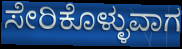
ಸೇರಿಕೊಳ್ಳುವಾಗ